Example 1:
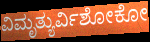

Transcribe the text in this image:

ವಿಮೃತ್ಯುರ್ವಿಶೋಕೋ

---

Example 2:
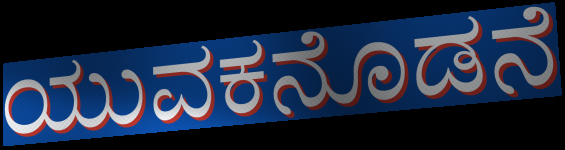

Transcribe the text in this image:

ಯುವಕನೊಡನೆ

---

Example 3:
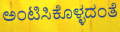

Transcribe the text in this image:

ಅಂಟಿಸಿಕೊಳ್ಳದಂತೆ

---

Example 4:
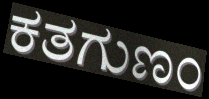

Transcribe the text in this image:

ಕತಗುಣಂ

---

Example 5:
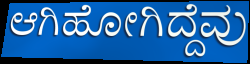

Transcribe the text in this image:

ಆಗಿಹೋಗಿದ್ದೆವು